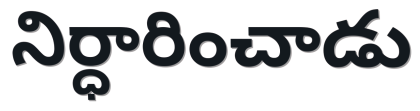
నిర్ధారించాడు